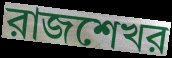
রাজশেখর